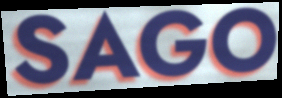
SAGO